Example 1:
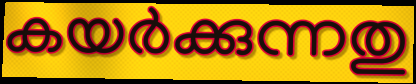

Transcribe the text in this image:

കയർക്കുന്നതു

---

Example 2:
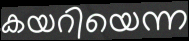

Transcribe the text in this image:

കയറിയെന്ന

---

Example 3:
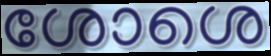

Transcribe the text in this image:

ശോശെ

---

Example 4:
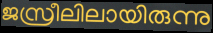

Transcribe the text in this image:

ജസ്രീലിലായിരുന്നു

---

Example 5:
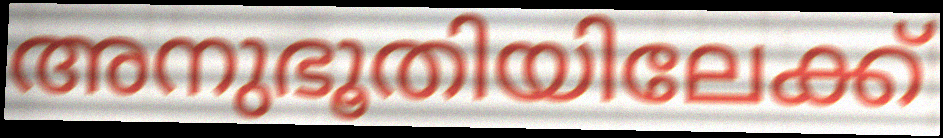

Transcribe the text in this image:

അനുഭൂതിയിലേക്ക്